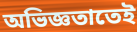
অভিজ্ঞতাতেই